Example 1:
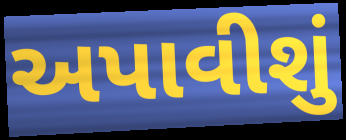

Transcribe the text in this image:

અપાવીશું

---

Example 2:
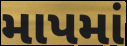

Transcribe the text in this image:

માપમાં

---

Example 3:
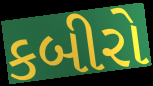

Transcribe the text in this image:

કબીરો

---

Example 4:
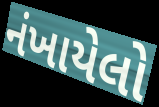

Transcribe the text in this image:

નંખાયેલો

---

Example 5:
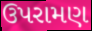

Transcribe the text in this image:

ઉપરામણ